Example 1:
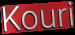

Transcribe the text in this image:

Kouri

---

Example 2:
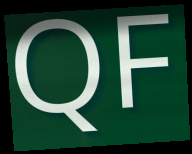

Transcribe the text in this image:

QF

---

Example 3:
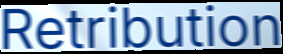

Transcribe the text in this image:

Retribution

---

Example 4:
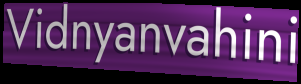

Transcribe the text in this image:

Vidnyanvahini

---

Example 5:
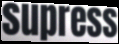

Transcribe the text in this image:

supress